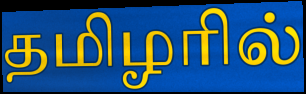
தமிழரில்